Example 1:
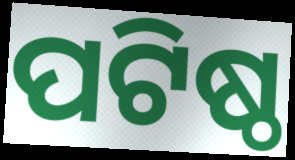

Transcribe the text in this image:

ପଟିଷ୍ଠ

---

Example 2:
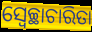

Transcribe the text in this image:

ସ୍ୱେଚ୍ଛାଚାରିତା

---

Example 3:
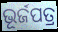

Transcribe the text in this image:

ଭୂର୍ଜପତ୍ର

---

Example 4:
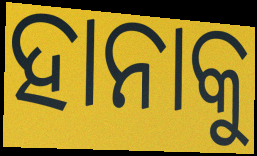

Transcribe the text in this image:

ହାନାକୁ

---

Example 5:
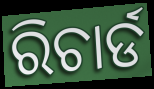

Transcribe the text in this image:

ରିଚାର୍ଡ